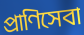
প্রাণিসেবা